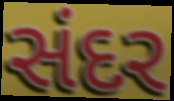
સંદર